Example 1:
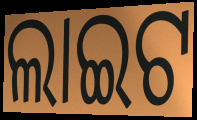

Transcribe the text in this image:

ଲାଇଟ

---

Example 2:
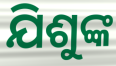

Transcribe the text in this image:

ଯିଶୁଙ୍କ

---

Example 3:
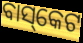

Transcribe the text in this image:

ବାସ୍‌କେଟ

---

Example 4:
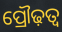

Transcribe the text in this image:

ପ୍ରୌଢ଼ତ୍ୱ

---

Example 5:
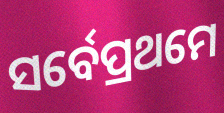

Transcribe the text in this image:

ସର୍ବେପ୍ରଥମେ